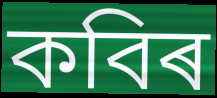
কবিৰ